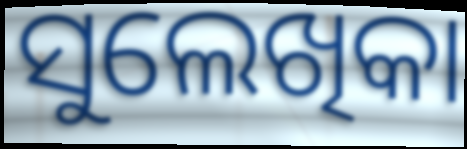
ସୁଲେଖିକା